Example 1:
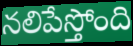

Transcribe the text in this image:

నలిపేస్తోంది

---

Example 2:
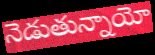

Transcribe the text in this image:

నెడుతున్నాయో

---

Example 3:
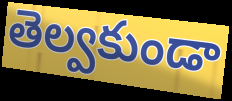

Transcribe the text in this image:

తెల్వకుండా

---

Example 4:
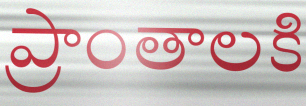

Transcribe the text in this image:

ప్రాంతాలకి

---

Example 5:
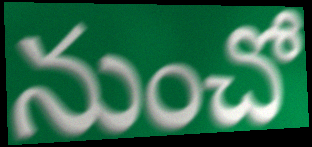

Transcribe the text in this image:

నుంచో